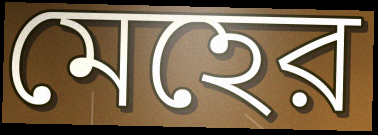
মেহের